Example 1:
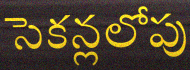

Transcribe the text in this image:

సెకన్లలోపు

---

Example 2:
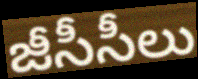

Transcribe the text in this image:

జీసీసీలు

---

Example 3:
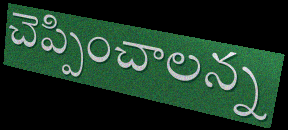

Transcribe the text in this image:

చెప్పించాలన్న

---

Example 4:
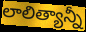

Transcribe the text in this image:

లాలిత్యాన్నీ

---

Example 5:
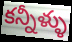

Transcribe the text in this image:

కన్నీళ్ళు